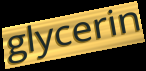
glycerin